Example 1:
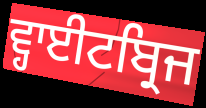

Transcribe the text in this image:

ਵ੍ਹਾਈਟਬ੍ਰਿਜ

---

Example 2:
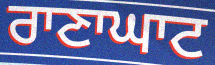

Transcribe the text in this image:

ਰਾਣਾਘਾਟ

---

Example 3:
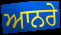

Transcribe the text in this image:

ਆਨਰੇ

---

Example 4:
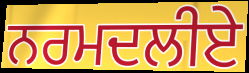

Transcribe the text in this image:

ਨਰਮਦਲੀਏ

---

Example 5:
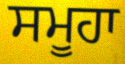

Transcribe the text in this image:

ਸਮੂਹਾ